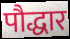
पौद्धार